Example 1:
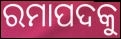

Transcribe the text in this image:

ରମାପଦକୁ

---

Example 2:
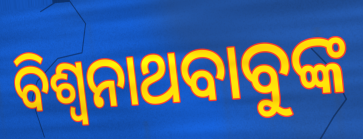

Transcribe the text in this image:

ବିଶ୍ୱନାଥବାବୁଙ୍କ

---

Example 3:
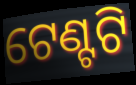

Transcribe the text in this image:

ଟେଣ୍ଟଟି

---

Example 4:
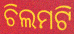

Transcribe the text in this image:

ଚିଲମଟି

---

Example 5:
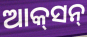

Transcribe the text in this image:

ଆକ୍‍ସନ୍